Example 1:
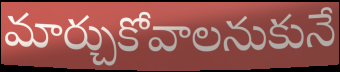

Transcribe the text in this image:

మార్చుకోవాలనుకునే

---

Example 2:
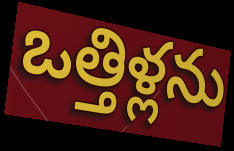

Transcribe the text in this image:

ఒత్తిళ్లను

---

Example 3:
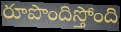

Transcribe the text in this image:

రూపొందిస్తోంది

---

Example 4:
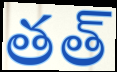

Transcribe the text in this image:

తత్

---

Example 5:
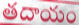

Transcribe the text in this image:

తదాయం